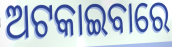
ଅଟକାଇବାରେ